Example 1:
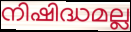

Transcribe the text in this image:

നിഷിദ്ധമല്ല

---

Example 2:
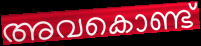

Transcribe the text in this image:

അവകൊണ്ട്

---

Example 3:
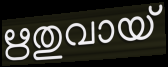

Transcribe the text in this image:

ഋതുവായ്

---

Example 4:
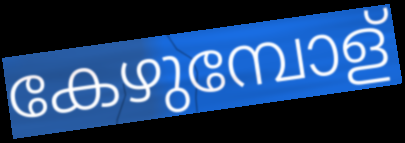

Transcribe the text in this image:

കേഴുമ്പോള്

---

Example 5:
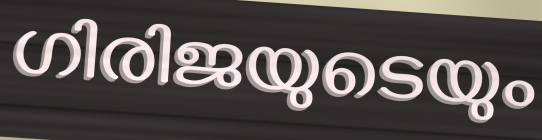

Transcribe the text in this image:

ഗിരിജയുടെയും